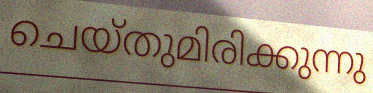
ചെയ്തുമിരിക്കുന്നു